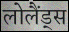
लोलैंड्स